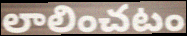
లాలించటం